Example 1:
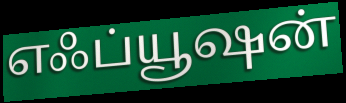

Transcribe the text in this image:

எஃப்யூஷன்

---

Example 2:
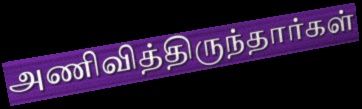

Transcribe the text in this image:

அணிவித்திருந்தார்கள்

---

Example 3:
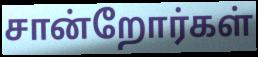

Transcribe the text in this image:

சான்றோர்கள்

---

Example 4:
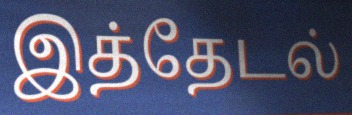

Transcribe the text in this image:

இத்தேடல்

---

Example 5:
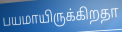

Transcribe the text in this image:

பயமாயிருக்கிறதா